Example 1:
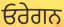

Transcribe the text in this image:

ਓਰੇਗਨ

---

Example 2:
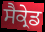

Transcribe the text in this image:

ਸੈਕ੍ਰੇਡ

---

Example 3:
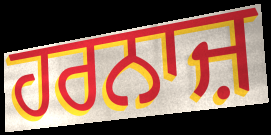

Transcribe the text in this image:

ਹਰਨਾਜ਼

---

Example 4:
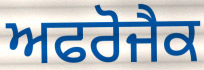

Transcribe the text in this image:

ਅਫਰੋਜੈਕ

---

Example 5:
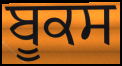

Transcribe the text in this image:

ਬੂਕਸ